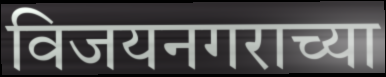
विजयनगराच्या